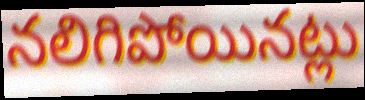
నలిగిపోయినట్లు